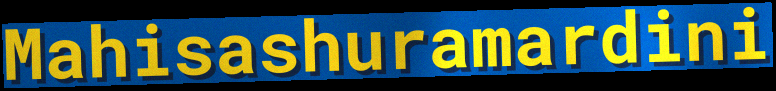
Mahisashuramardini